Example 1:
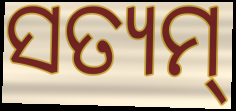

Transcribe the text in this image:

ସତ୍ୟମ୍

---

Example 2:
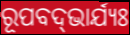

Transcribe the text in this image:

ରୂପବଦ୍‌ଭାର୍ଯ୍ୟଃ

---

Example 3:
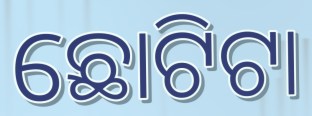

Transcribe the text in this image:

ଛୋଟିଟା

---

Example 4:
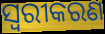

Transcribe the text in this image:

ସ୍ୱରୀକରଣ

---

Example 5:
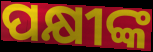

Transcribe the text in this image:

ପକ୍ଷୀଙ୍କ